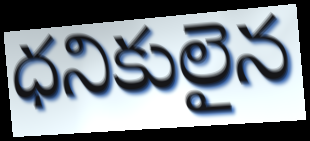
ధనికులైన